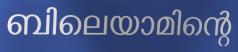
ബിലെയാമിന്റെ